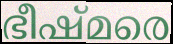
ഭീഷ്മരെ